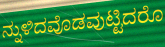
ನ್ನುಳಿದವೊಡವುಟ್ಟಿದರೊ